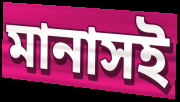
মানাসই